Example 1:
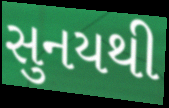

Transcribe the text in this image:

સુનયથી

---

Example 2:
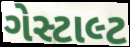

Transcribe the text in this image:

ગેસ્ટાલ્ટ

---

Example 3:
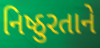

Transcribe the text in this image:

નિષ્ઠુરતાને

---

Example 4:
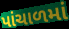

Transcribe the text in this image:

પાંચાળમાં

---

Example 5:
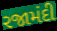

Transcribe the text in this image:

રજામંદી